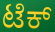
ಟೆಕ್